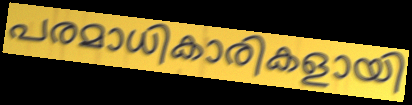
പരമാധികാരികളായി